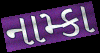
નામ્કા